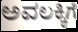
ಅವಲಕ್ಕಿಗೆ